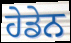
ਹੇਡੇਨ